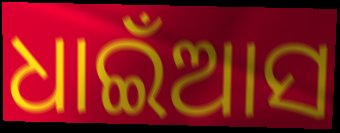
ଧାଇଁଆସ